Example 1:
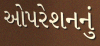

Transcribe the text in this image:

ઓપરેશનનું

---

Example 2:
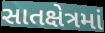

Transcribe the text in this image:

સાતક્ષેત્રમાં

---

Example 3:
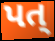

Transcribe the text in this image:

પત્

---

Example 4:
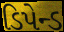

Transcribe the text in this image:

ડિપેન્ડ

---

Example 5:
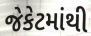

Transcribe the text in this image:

જેકેટમાંથી